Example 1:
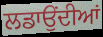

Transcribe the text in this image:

ਲਡਾਉਂਦੀਆਂ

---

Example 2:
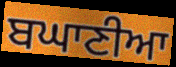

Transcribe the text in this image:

ਬਘਾਣੀਆ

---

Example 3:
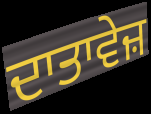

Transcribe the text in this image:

ਦਾਤਾਵੇਜ਼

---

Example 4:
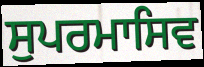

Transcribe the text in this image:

ਸੁਪਰਮਾਸਿਵ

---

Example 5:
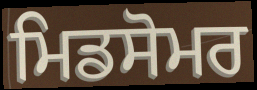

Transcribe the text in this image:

ਮਿਡਸੋਮਰ